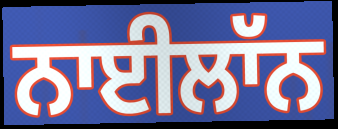
ਨਾਈਲਾੱਨ